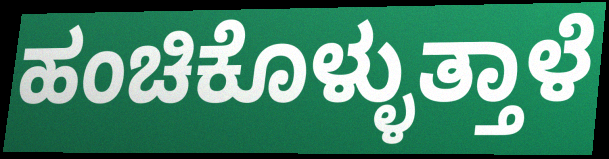
ಹಂಚಿಕೊಳ್ಳುತ್ತಾಳೆ